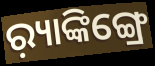
ର଼୍ୟାଙ୍କିଙ୍ଗ୍ରେ